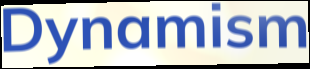
Dynamism